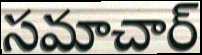
సమాచార్